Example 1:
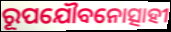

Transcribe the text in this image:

ରୂପଯୌବନୋତ୍ସାହୀ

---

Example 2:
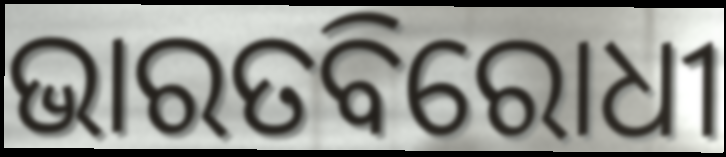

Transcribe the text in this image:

ଭାରତବିରୋଧୀ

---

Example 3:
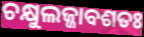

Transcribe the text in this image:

ଚକ୍ଷୁଲଜ୍ଜାବଶତଃ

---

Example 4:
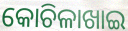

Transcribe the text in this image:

କୋଚିଳାଖାଇ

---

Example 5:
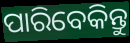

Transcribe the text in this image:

ପାରିବେକିନ୍ତୁ